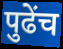
पुढेंच